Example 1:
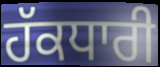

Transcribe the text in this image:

ਹੱਕਧਾਰੀ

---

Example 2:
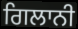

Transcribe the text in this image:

ਗਿਲਾਨੀ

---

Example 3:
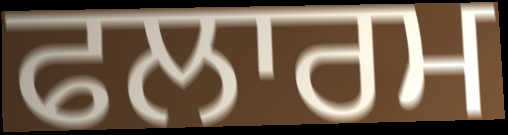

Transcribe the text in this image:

ਫਲਾਰਮ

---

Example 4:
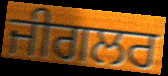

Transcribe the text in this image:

ਜੀਗਲਰ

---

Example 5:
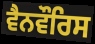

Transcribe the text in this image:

ਵੈਨਵੌਰਿਸ